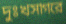
দুঃখসাগরে